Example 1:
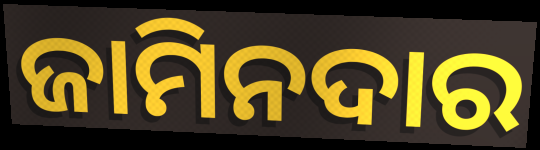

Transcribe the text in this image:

ଜାମିନଦାର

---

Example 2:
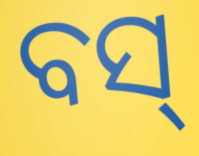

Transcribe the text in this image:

ବସ୍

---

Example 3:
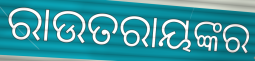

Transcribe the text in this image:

ରାଉତରାୟଙ୍କର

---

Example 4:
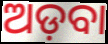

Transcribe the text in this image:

ଅଡ଼ବା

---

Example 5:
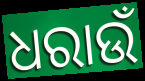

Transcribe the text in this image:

ଧରାଉଁ